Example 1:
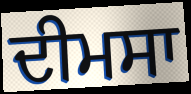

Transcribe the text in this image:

ਦੀਮਸਾ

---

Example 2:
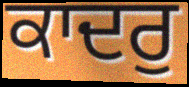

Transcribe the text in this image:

ਕਾਦਰੁ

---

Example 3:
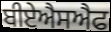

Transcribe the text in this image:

ਬੀਏਐਸਐਫ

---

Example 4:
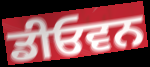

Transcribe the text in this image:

ਡੀਓਵਨ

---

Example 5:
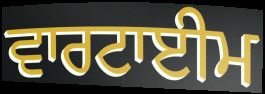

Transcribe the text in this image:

ਵਾਰਟਾਈਮ